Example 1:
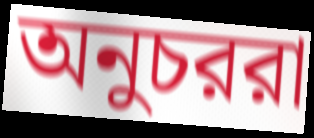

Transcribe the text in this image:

অনুচররা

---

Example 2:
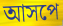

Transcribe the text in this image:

আসপে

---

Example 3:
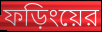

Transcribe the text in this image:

ফড়িংয়ের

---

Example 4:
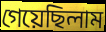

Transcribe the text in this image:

গেয়েছিলাম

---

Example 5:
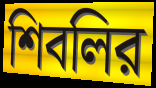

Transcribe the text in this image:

শিবলির